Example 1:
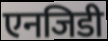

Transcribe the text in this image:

एनजिडी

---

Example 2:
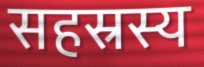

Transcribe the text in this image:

सहस्रस्य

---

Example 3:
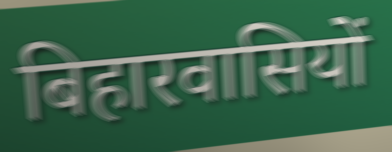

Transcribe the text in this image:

बिहारवासियों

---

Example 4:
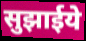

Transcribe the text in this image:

सुझाईये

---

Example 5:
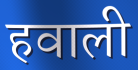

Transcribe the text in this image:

हवाली